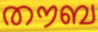
തൗബ